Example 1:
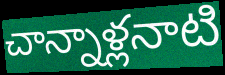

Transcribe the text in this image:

చాన్నాళ్లనాటి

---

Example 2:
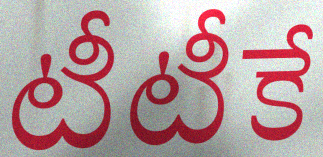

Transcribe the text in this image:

టీటీకే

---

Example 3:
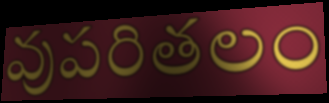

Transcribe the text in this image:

వుపరితలం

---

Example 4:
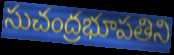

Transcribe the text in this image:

సుచంద్రభూపతిని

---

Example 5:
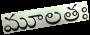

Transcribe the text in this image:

మూలతః